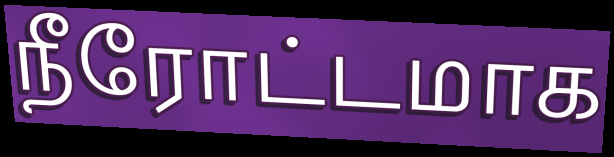
நீரோட்டமாக